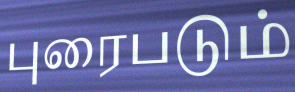
புரைபடும்